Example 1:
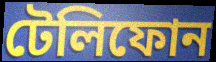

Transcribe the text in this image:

টেলিফোন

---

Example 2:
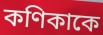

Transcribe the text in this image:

কণিকাকে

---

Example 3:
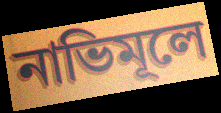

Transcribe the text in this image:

নাভিমূলে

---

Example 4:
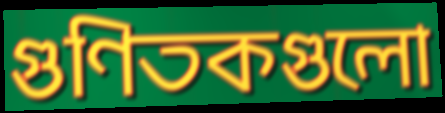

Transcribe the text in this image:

গুণিতকগুলো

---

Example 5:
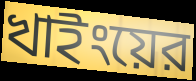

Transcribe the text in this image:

খাইংয়ের